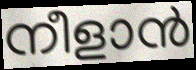
നീളാൻ